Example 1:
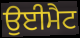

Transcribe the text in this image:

ਉਈਮੈਟ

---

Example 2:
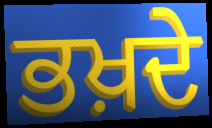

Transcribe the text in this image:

ਭਖ਼ਦੇ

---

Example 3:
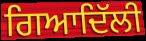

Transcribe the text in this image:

ਗਿਆਦਿੱਲੀ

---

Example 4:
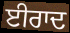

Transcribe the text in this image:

ਈਰਾਦ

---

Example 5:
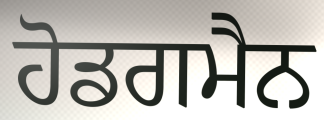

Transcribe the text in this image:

ਹੋਡਗਮੈਨ